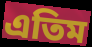
এতিম